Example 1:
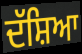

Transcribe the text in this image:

ਦੱਸ਼ਿਆ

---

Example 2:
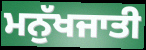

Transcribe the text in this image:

ਮਨੁੱਖਜਾਤੀ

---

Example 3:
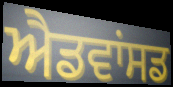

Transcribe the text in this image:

ਐਡਵਾਂਸਡ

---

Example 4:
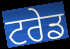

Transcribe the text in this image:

ਟਰੇਡ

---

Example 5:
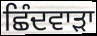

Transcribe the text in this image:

ਛਿੰਦਵਾੜਾ